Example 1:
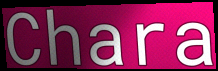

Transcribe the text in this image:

Chara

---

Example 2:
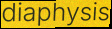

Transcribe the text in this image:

diaphysis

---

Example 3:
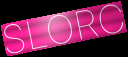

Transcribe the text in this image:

SLORC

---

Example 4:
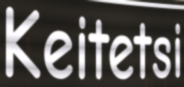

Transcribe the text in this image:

Keitetsi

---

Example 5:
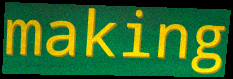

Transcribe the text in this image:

making